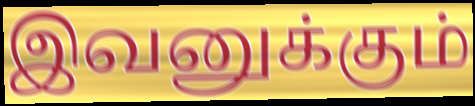
இவனுக்கும்